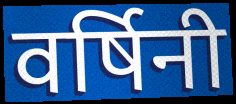
वर्षिनी